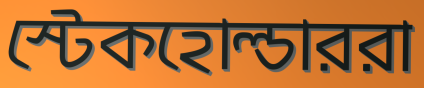
স্টেকহোল্ডাররা